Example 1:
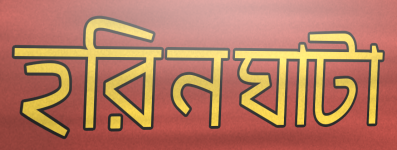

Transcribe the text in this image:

হরিনঘাটা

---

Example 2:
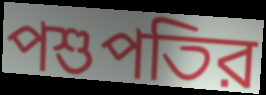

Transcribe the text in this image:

পশুপতির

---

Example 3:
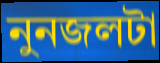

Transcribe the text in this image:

নুনজলটা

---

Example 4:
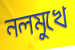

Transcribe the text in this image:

নলমুখে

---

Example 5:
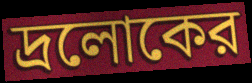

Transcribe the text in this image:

দ্রলোকের